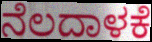
ನೆಲದಾಳಕೆ